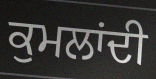
ਕੁਮਲਾਂਦੀ